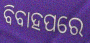
ବିବାହପରେ